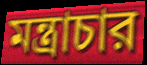
মন্ত্রাচার